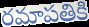
రమాపతికి